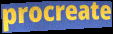
procreate